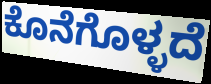
ಕೊನೆಗೊಳ್ಳದೆ